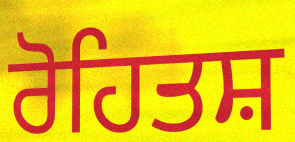
ਰੋਹਿਤਸ਼